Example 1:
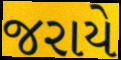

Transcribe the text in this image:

જરાયે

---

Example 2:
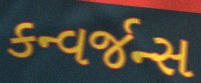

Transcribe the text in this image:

કન્વર્જન્સ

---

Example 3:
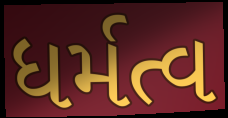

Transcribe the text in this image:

ધર્મત્વ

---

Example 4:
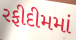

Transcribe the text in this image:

રફીદીમમાં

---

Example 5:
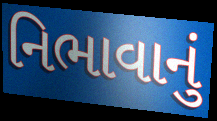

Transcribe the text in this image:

નિભાવાનું